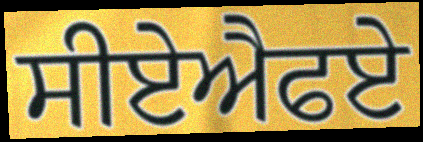
ਸੀਏਐਫਏ